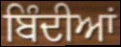
ਬਿੰਦੀਆਂ